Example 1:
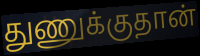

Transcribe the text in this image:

துணுக்குதான்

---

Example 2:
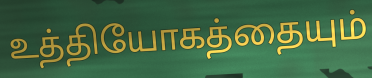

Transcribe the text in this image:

உத்தியோகத்தையும்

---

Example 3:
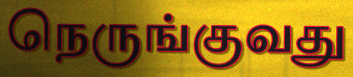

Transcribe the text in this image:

நெருங்குவது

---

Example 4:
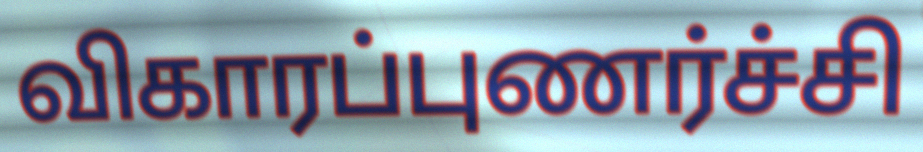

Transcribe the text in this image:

விகாரப்புணர்ச்சி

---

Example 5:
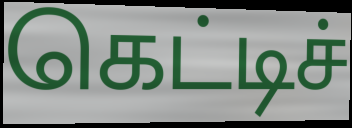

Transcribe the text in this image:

கெட்டிச்